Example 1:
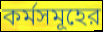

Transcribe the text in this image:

কর্মসমূহের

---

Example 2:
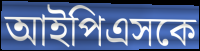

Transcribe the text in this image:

আইপিএসকে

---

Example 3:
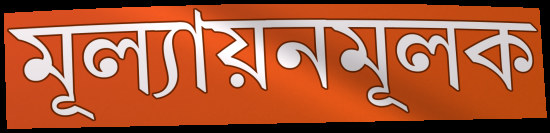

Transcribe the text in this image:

মূল্যায়নমূলক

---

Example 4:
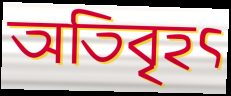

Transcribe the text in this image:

অতিবৃহৎ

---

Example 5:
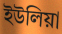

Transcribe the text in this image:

ইউলিয়া